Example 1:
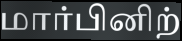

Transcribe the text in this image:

மார்பினிற்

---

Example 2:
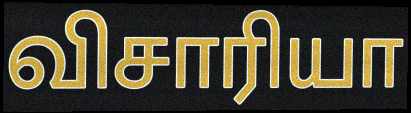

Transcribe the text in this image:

விசாரியா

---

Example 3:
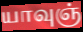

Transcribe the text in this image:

யாவுஞ்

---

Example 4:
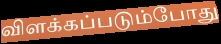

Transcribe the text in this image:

விளக்கப்படும்போது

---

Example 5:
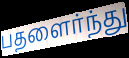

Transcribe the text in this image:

பதளைர்ந்து